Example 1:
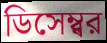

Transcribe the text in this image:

ডিসেম্ব্বর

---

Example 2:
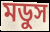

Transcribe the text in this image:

মডুস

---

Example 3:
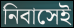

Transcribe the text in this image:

নিবাসেই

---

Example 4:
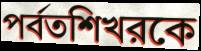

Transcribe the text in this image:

পর্বতশিখরকে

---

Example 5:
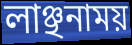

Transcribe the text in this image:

লাঞ্ছনাময়